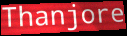
Thanjore